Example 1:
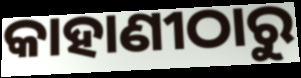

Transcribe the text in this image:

କାହାଣୀଠାରୁ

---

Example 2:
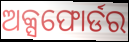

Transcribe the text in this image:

ଅକ୍ସଫୋର୍ଡର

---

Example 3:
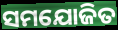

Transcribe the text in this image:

ସମଯୋଜିତ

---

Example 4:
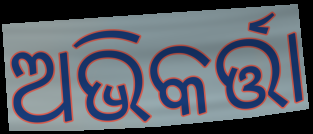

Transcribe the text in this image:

ଅଭିକର୍ତ୍ତା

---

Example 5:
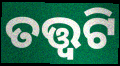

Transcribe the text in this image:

ତତ୍ତ୍ଵଟି